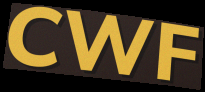
CWF